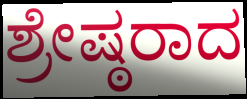
ಶ್ರೇಷ್ಠರಾದ